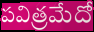
పవిత్రమేదో